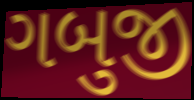
ગબુજી